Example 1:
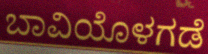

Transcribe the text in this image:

ಬಾವಿಯೊಳಗಡೆ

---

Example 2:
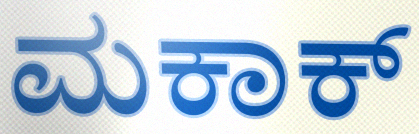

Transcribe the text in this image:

ಮಕಾಕ್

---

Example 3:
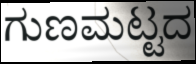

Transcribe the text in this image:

ಗುಣಮಟ್ಟದ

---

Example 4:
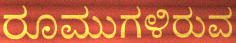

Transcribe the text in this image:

ರೂಮುಗಳಿರುವ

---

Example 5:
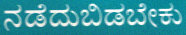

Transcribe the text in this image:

ನಡೆದುಬಿಡಬೇಕು